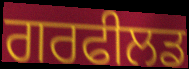
ਗਰਫੀਲਡ